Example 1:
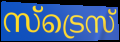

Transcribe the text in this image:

സ്ട്രെസ്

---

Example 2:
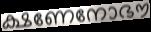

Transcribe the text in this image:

ക്ഷണേനോഭൗ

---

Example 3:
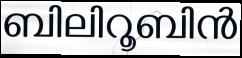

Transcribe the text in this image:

ബിലിറൂബിൻ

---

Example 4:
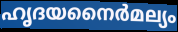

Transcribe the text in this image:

ഹൃദയനൈർമല്യം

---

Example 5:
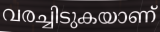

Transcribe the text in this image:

വരച്ചിടുകയാണ്